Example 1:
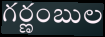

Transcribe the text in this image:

గర్ణంబుల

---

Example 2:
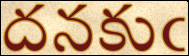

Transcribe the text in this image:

దనకుఁ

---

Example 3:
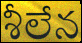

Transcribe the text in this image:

శీలేన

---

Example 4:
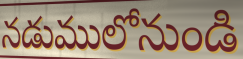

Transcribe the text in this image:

నడుములోనుండి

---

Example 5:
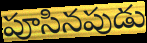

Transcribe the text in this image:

పూసినపుడు